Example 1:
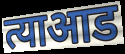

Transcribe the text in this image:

त्याआड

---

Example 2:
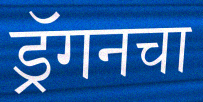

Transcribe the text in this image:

ड्रॅगनचा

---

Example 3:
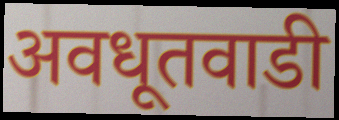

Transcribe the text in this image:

अवधूतवाडी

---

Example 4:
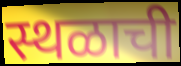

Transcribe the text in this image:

स्थळाची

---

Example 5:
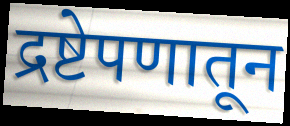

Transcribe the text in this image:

द्रष्टेपणातून